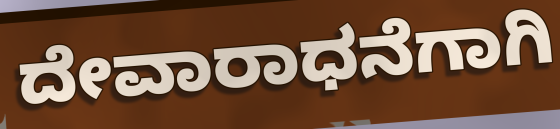
ದೇವಾರಾಧನೆಗಾಗಿ